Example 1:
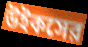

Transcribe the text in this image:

উইকসের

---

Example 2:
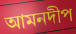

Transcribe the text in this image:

আমনদীপ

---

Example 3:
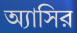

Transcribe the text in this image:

অ্যাসির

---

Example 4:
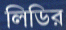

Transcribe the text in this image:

লিডির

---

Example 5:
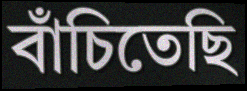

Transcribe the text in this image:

বাঁচিতেছি